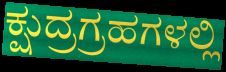
ಕ್ಷುದ್ರಗ್ರಹಗಳಲ್ಲಿ